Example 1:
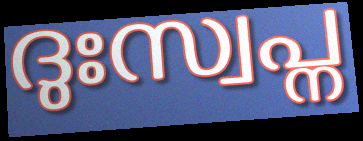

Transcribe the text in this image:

ദുഃസ്വപ്ന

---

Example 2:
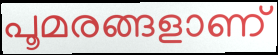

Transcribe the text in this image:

പൂമരങ്ങളാണ്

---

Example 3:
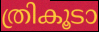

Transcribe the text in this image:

ത്രികൂടാ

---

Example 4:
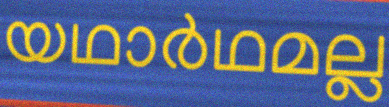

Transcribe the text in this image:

യഥാർഥമല്ല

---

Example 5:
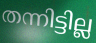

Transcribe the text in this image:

തന്നിട്ടില്ല